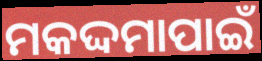
ମକଦ୍ଦମାପାଇଁ